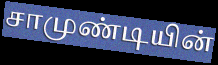
சாமுண்டியின்